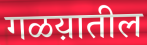
गळय़ातील